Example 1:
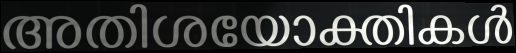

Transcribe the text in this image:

അതിശയോക്തികൾ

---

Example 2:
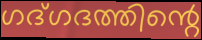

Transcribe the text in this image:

ഗദ്ഗദത്തിന്റെ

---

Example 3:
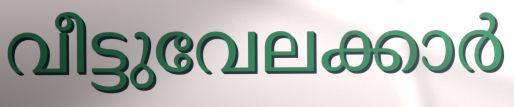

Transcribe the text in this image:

വീട്ടുവേലക്കാർ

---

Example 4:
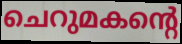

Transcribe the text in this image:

ചെറുമകന്റെ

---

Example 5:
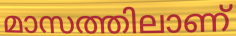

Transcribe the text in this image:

മാസത്തിലാണ്